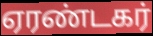
ஏரண்டகர்